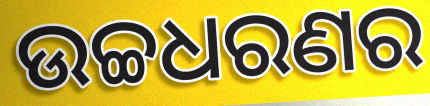
ଉଚ୍ଚଧରଣର